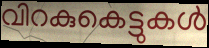
വിറകുകെട്ടുകൾ